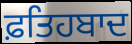
ਫ਼ਤਿਹਬਾਦ